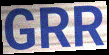
GRR